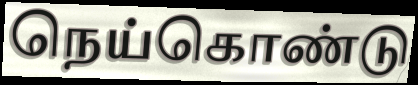
நெய்கொண்டு